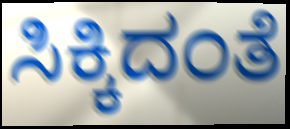
ಸಿಕ್ಕಿದಂತೆ